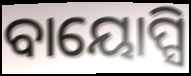
ବାୟୋପ୍ସି